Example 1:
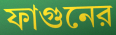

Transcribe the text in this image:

ফাগুনের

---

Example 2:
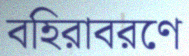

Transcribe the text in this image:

বহিরাবরণে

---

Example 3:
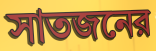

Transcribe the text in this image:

সাতজনের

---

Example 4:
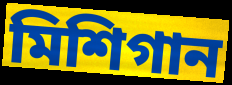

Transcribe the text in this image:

মিশিগান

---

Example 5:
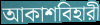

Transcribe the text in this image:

আকাশবিহারী